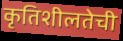
कृतिशीलतेची